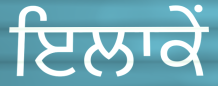
ਇਲਾਕੇਂ